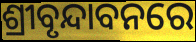
ଶ୍ରୀବୃନ୍ଦାବନରେ